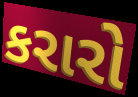
કરારો